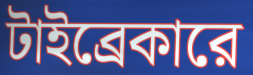
টাইব্রেকারে